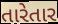
તારેતાર